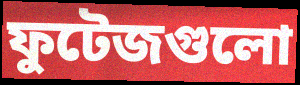
ফুটেজগুলো